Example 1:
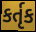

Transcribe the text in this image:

કર્તૃક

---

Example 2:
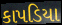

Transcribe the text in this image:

કાપડિયા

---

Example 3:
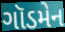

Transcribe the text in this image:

ગૉડમેન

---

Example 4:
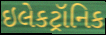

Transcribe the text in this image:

ઇલેકટ્રૉનિક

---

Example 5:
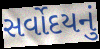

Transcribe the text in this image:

સર્વોદયનું